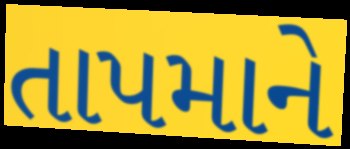
તાપમાને